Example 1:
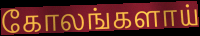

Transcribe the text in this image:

கோலங்களாய்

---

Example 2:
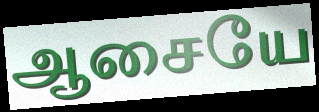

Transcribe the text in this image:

ஆசையே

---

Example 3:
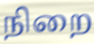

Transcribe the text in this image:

நிறை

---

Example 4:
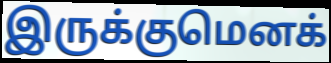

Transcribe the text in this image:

இருக்குமெனக்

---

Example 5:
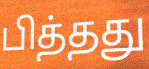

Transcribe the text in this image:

பித்தது